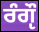
ਰੰਗੵੌ